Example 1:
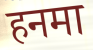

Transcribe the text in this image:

हनमा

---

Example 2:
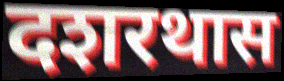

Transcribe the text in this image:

दशरथास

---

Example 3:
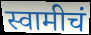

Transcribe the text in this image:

स्वामीचं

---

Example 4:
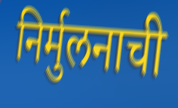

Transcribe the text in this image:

निर्मुलनाची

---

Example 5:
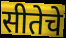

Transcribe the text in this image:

सीतेचे